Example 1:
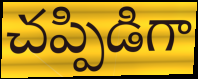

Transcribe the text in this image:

చప్పిడిగా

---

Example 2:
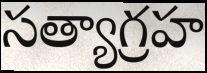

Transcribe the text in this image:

సత్యాగ్రహ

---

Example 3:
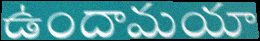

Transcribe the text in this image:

ఉందామయా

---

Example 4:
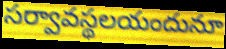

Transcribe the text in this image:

సర్వావస్థలయందునూ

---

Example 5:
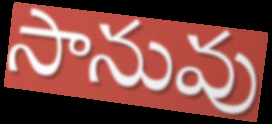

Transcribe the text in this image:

సానువు